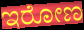
ಇರೋಣ